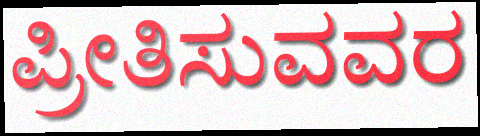
ಪ್ರೀತಿಸುವವರ